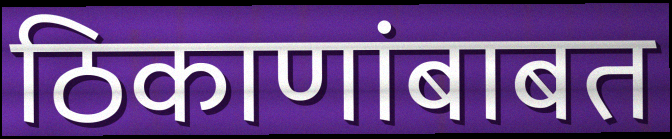
ठिकाणांबाबत